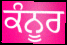
ਕੰਨੂਰ